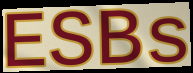
ESBs